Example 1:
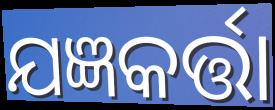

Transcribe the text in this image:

ଯଜ୍ଞକର୍ତ୍ତା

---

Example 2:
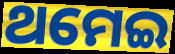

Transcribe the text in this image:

ଥମେଇ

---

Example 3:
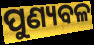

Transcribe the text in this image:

ପୁଣ୍ୟବଳ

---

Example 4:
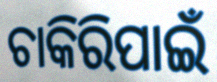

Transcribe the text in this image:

ଚାକିରିପାଇଁ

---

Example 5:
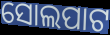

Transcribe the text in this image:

ସୋଲପାଟ